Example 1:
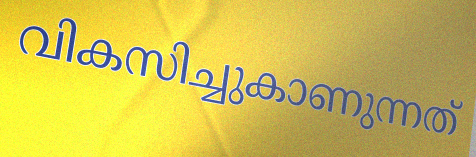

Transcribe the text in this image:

വികസിച്ചുകാണുന്നത്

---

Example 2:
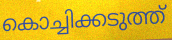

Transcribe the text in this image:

കൊച്ചിക്കടുത്ത്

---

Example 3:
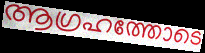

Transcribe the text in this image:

ആഗ്രഹത്തോടെ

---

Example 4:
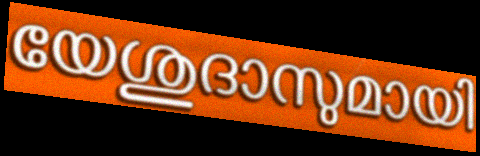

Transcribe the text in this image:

യേശുദാസുമായി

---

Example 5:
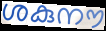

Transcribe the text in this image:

ശകുനൗ